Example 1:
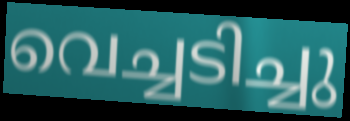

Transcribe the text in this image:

വെച്ചടിച്ചു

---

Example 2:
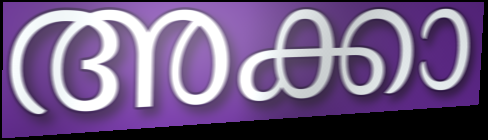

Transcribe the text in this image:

അക്കാ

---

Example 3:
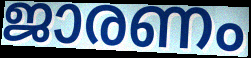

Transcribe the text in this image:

ജാരണം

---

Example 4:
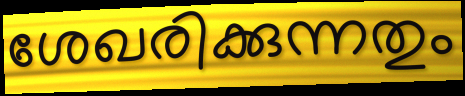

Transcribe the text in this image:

ശേഖരിക്കുന്നതും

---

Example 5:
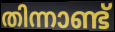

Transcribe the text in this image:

തിന്നാണ്ട്